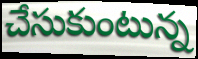
చేసుకుంటున్న